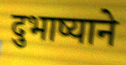
दुभाष्याने